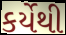
કર્યેથી